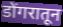
डोंगरातून